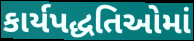
કાર્યપદ્ધતિઓમાં